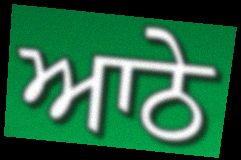
ਆਠੇ